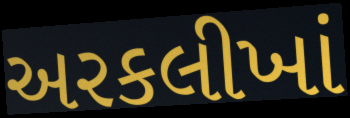
અરકલીખાં